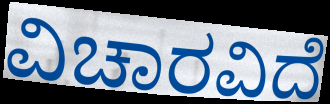
ವಿಚಾರವಿದೆ